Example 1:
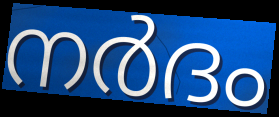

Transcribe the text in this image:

നർദം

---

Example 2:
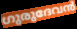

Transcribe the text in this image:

ഗുരുദേവൻ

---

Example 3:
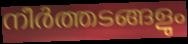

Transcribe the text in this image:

നീർത്തടങ്ങളും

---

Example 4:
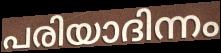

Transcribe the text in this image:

പരിയാദിന്നം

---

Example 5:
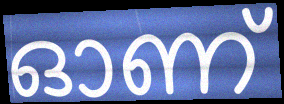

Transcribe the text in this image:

ഓണ്